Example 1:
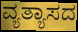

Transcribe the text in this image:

ವ್ಯತ್ಯಾಸದ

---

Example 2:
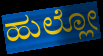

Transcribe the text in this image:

ಹುಲ್ಲೋ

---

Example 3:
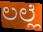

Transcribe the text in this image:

ಲಲ್ಲೆ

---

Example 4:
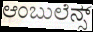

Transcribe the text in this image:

ಆಂಬುಲೆನ್ಸ್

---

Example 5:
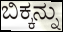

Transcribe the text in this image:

ಬಿಕ್ಕನ್ನು